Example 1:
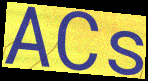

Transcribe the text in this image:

ACs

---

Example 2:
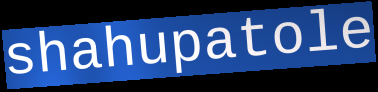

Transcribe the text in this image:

shahupatole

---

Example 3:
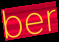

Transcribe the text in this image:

ber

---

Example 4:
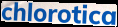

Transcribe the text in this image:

chlorotica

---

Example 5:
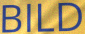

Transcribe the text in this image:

BILD